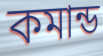
কমান্ড